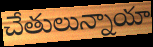
చేతులున్నాయా